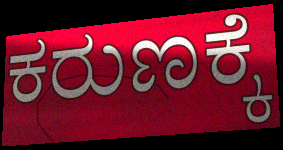
ಕರುಣಕ್ಕೆ